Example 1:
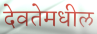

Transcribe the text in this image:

देवतेमधील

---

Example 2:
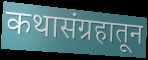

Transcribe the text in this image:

कथासंग्रहातून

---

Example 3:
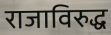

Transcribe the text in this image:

राजाविरुद्ध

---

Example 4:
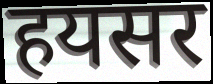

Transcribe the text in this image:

हयसर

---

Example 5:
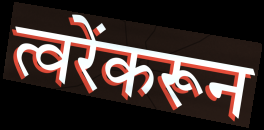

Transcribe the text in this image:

त्वरेंकरून